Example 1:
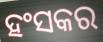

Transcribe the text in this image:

ହଂସକର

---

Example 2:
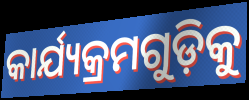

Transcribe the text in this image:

କାର୍ଯ୍ୟକ୍ରମଗୁଡ଼ିକୁ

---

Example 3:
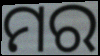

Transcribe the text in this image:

ମର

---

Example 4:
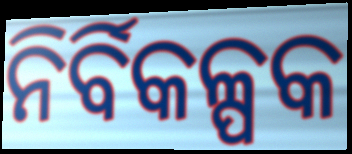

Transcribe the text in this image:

ନିର୍ବିକଳ୍ପକ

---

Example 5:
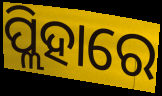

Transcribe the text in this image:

ପ୍ଲିହାରେ